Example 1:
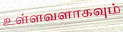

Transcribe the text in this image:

உள்ளவளாகவும்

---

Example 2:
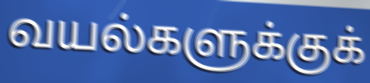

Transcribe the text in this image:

வயல்களுக்குக்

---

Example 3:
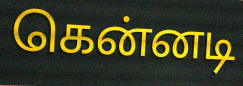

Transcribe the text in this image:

கென்னடி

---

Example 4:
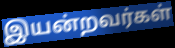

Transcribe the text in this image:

இயன்றவர்கள்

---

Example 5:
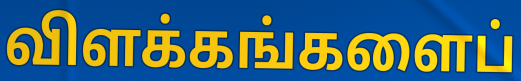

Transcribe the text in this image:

விளக்கங்களைப்